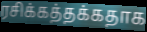
ரசிக்கத்தக்கதாக